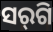
ସର୍‌ଗି